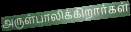
அருள்பாலிக்கிறார்கள்